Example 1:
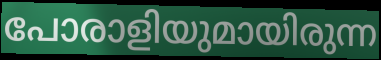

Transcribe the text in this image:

പോരാളിയുമായിരുന്ന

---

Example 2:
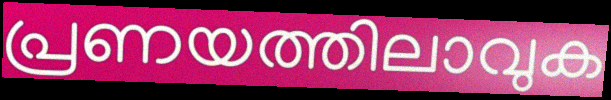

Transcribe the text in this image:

പ്രണയത്തിലാവുക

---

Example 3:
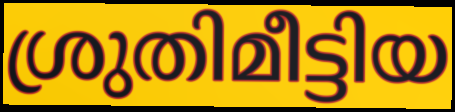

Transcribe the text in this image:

ശ്രുതിമീട്ടിയ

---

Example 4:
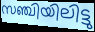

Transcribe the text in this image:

സഞ്ചിയിലിട്ടു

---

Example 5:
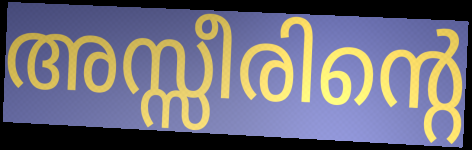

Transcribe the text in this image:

അസ്സീരിന്റെ